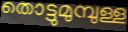
തൊട്ടുമുമ്പുള്ള